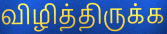
விழித்திருக்க